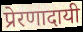
प्रेरणादायी